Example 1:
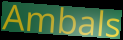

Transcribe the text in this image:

Ambals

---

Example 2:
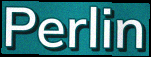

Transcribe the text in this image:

Perlin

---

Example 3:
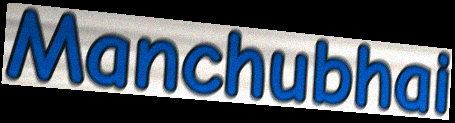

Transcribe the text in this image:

Manchubhai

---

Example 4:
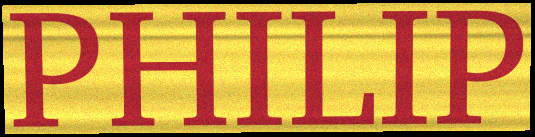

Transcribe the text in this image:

PHILIP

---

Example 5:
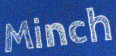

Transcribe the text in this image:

Minch